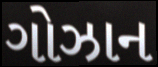
ગોઝાન